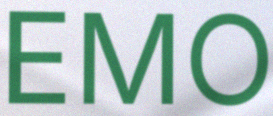
EMO